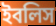
ইবলিস